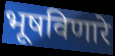
भूषविणारे